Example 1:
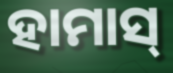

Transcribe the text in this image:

ହାମାସ୍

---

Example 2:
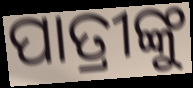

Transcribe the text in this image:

ପାତ୍ରୀଙ୍କୁ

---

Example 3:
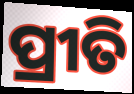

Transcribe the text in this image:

ପ୍ରୀତି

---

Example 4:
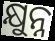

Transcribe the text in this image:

କ୍ଷୁନ୍ନ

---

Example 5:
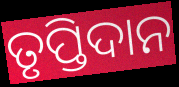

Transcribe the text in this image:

ତୃପ୍ତିଦାନ